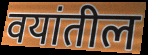
वयांतील